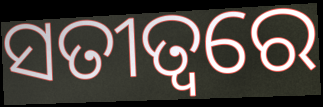
ସତୀତ୍ୱରେ